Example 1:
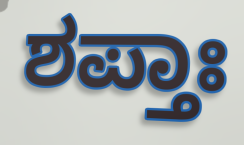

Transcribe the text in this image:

ಶಪ್ತಾಃ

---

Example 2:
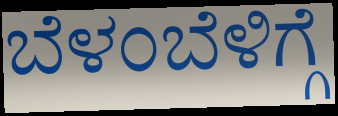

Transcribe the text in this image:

ಬೆಳಂಬೆಳಿಗ್ಗೆ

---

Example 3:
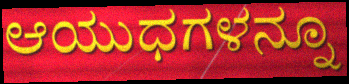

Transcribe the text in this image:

ಆಯುಧಗಳನ್ನೂ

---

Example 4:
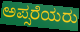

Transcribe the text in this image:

ಅಪ್ಸರೆಯರು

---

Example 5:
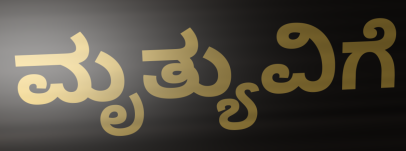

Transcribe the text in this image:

ಮೃತ್ಯುವಿಗೆ